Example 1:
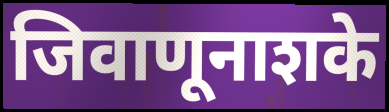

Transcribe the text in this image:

जिवाणूनाशके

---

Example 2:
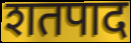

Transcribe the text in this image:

शतपाद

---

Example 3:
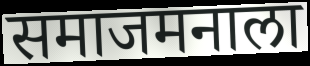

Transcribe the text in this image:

समाजमनाला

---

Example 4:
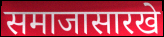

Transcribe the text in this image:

समाजासारखे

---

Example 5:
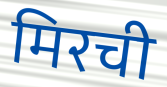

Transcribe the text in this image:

मिरची